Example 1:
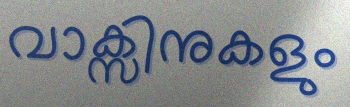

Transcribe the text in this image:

വാക്സിനുകളും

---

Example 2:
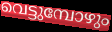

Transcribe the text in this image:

വെട്ടുമ്പോഴും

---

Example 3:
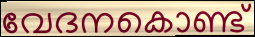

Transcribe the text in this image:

വേദനകൊണ്ട്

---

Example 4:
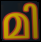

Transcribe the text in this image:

മി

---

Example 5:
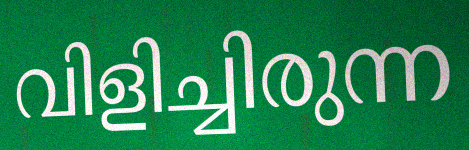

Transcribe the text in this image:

വിളിച്ചിരുന്ന